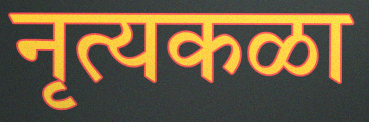
नृत्यकळा